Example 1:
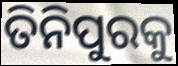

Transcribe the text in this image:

ତିନିପୁରକୁ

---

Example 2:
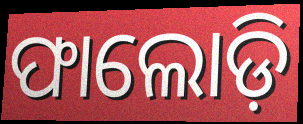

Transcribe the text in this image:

ଫାଲୋଡ଼ି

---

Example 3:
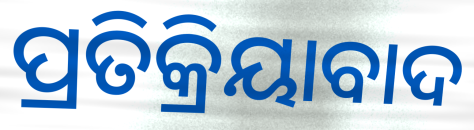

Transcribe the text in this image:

ପ୍ରତିକ୍ରିୟାବାଦ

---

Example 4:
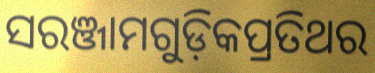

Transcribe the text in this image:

ସରଞ୍ଜାମଗୁଡ଼ିକପ୍ରତିଥର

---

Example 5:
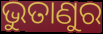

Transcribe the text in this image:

ଭୁତାଣୁର